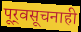
पूर्वसूचनाही